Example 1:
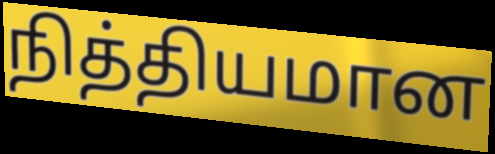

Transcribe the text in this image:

நித்தியமான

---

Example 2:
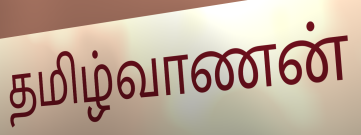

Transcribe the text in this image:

தமிழ்வாணன்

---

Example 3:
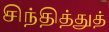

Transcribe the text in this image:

சிந்தித்துத்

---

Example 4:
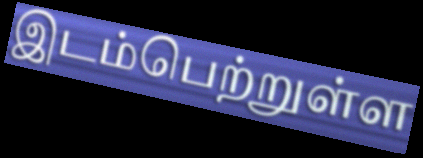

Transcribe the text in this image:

இடம்பெற்றுள்ள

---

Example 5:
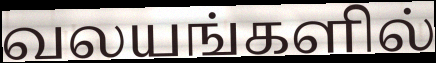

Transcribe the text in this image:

வலயங்களில்